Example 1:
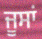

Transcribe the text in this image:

ਜੂਸਾਂ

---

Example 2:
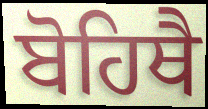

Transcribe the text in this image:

ਬੋਹਿਥੈ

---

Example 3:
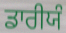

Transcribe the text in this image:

ਡਾਰੀਯੰ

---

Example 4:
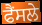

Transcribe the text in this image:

ਫੈਂਸਲੇ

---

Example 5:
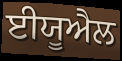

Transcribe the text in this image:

ਈਯੂਐਲ